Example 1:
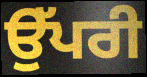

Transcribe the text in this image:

ਉੱਪਰੀ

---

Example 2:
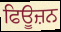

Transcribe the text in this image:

ਫਿਊਜ਼ਨ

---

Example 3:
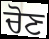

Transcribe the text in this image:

ਚੋਣ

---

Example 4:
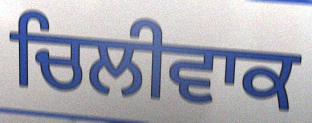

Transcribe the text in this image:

ਚਿਲੀਵਾਕ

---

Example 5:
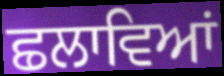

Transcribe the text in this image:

ਛਲਾਵਿਆਂ